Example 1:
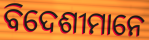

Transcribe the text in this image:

ବିଦେଶୀମାନେ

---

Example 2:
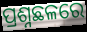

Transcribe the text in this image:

ପ୍ରଶ୍ନଛଳରେ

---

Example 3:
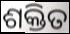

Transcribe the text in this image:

ଶକ୍ତିତ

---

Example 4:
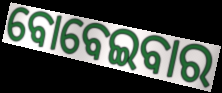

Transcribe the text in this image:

ବୋବେଇବାର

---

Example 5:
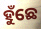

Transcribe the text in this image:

ହୁଁଛେ